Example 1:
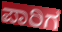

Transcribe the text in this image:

ಪಾರಿಗ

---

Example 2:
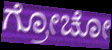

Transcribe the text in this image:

ಗ್ರೋಚೋ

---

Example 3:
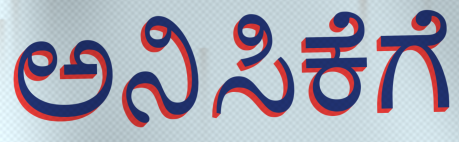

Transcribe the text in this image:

ಅನಿಸಿಕೆಗೆ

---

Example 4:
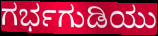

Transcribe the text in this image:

ಗರ್ಭಗುಡಿಯು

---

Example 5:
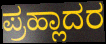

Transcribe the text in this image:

ಪ್ರಹ್ಲಾದರ